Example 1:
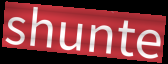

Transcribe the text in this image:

shunte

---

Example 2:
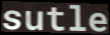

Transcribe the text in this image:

sutle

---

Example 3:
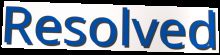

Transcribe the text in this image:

Resolved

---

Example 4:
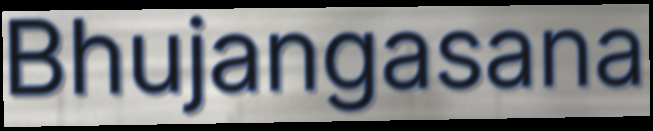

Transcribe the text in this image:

Bhujangasana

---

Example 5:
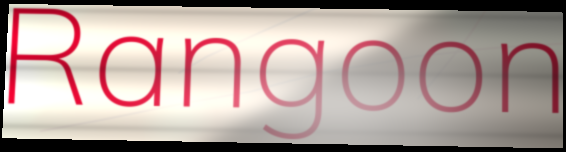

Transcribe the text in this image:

Rangoon